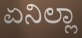
ಏನಿಲ್ಲಾ